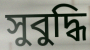
সুবুদ্ধি